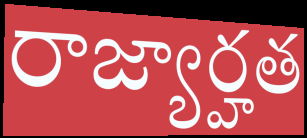
రాజ్యార్హత